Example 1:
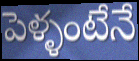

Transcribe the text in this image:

పెళ్ళంటేనే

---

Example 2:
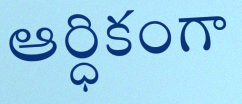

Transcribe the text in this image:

ఆర్ధికంగా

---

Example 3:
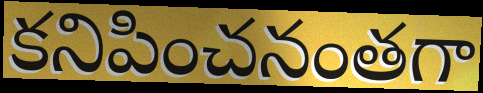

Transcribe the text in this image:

కనిపించనంతగా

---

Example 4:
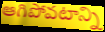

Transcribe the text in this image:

ఆగిపోవటాన్ని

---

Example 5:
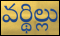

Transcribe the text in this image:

వర్థిల్లు